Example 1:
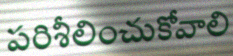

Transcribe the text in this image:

పరిశీలించుకోవాలి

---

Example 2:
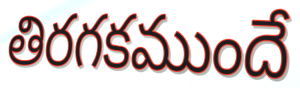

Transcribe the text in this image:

తిరగకముందే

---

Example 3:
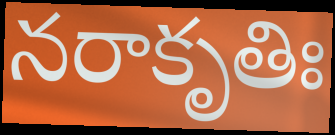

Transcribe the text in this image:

నరాకృతిః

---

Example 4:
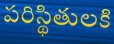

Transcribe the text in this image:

పరిస్థితులకి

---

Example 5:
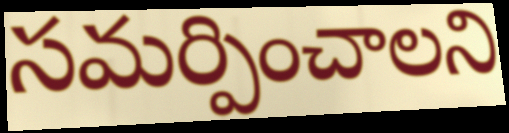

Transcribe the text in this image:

సమర్పించాలని